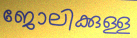
ജോലിക്കുള്ള